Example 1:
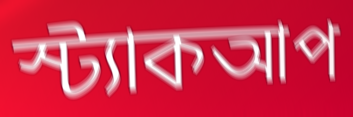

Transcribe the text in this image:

স্ট্যাকআপ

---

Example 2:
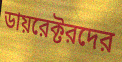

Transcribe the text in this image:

ডায়রেক্টরদের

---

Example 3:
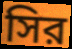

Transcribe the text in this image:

সির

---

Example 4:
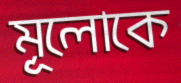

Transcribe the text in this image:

মূলোকে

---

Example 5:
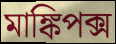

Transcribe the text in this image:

মাঙ্কিপক্স